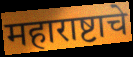
महाराष्टाचे